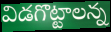
విడగొట్టాలన్న